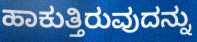
ಹಾಕುತ್ತಿರುವುದನ್ನು